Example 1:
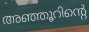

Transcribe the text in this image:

അഞ്ഞൂറിന്റെ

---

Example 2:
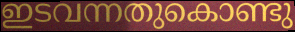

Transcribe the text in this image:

ഇടവന്നതുകൊണ്ടു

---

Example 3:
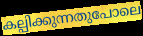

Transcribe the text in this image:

കല്പിക്കുന്നതുപോലെ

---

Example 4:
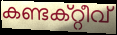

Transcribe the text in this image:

കണ്ടക്റ്റീവ്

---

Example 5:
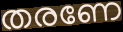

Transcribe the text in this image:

തരണേ